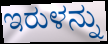
ಇರುಳನ್ನು